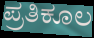
ಪ್ರತಿಕೂಲ